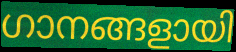
ഗാനങ്ങളായി